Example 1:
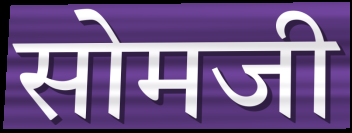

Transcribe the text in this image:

सोमजी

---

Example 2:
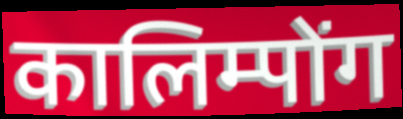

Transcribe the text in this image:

कालिम्पोंग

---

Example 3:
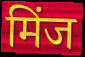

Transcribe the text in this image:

मिंज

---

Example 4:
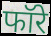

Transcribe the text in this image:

फॉरे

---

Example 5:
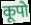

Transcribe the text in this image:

कूपो